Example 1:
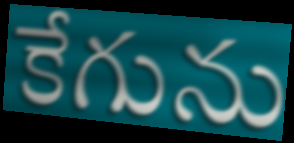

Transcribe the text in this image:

కేగును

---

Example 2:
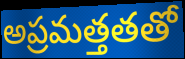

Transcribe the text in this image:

అప్రమత్తతతో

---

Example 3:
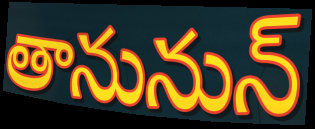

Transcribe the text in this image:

తానునున్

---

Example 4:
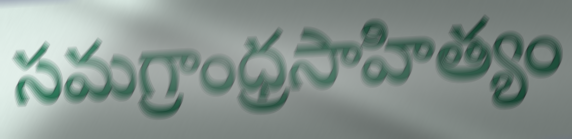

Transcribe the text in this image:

సమగ్రాంధ్రసాహిత్యం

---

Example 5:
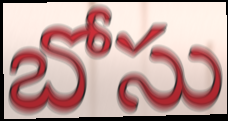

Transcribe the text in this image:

బోసు